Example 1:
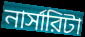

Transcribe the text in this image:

নার্সারিটা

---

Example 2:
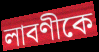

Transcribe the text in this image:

লাবণীকে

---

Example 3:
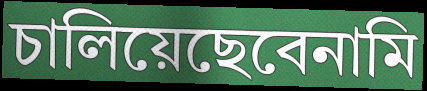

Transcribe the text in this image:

চালিয়েছেবেনামি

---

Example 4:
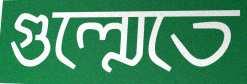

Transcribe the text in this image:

গুল্মেতে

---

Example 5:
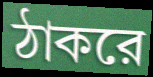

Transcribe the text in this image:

ঠাকরে